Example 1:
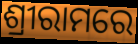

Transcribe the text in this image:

ଶ୍ରୀରାମରେ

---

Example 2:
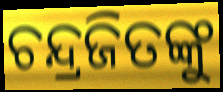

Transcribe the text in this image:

ଚନ୍ଦ୍ରଜିତଙ୍କୁ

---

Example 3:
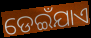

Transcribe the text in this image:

ଡେଇଁଯାଏ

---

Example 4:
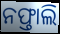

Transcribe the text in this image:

ନଫ୍ତାଲି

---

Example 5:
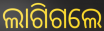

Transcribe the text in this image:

ଲାଗିଗଲେ